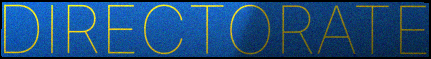
DIRECTORATE